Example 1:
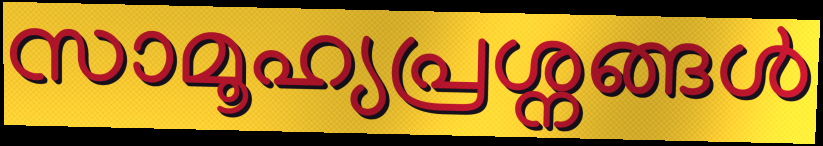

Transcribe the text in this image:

സാമൂഹ്യപ്രശ്നങ്ങൾ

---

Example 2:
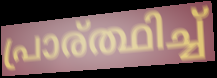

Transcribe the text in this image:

പ്രാര്ത്ഥിച്ച്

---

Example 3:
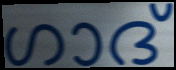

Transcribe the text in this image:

ഗാദ്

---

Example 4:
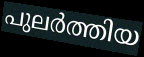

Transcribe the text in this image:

പുലർത്തിയ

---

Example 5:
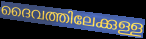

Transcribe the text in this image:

ദൈവത്തിലേക്കുള്ള